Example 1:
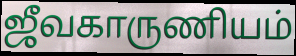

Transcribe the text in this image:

ஜீவகாருணியம்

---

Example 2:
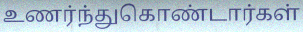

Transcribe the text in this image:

உணர்ந்துகொண்டார்கள்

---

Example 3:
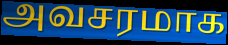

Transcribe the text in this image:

அவசரமாக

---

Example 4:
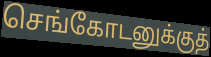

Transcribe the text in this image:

செங்கோடனுக்குத்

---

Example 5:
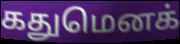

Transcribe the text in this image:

கதுமெனக்